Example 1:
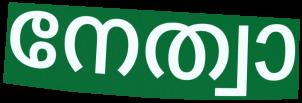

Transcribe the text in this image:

നേത്വാ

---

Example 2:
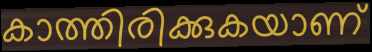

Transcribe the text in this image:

കാത്തിരിക്കുകയാണ്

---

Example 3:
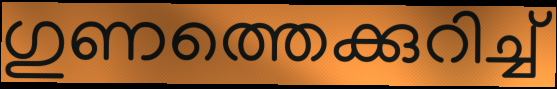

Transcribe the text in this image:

ഗുണത്തെക്കുറിച്ച്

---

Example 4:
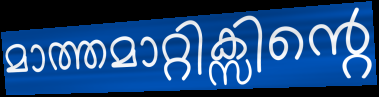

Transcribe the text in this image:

മാത്തമാറ്റിക്സിന്റെ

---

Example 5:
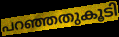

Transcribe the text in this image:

പറഞ്ഞതുകൂടി